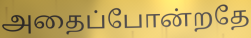
அதைப்போன்றதே